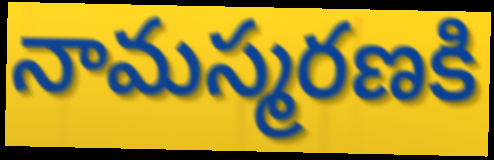
నామస్మరణకి